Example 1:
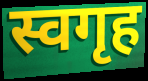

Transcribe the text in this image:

स्वगृह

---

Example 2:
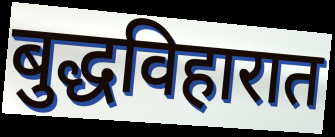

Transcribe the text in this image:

बुद्धविहारात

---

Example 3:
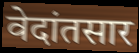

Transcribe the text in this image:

वेदांतसार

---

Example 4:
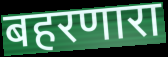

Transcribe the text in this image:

बहरणारा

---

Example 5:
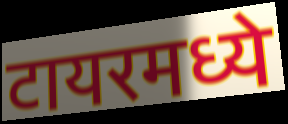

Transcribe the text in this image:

टायरमध्ये